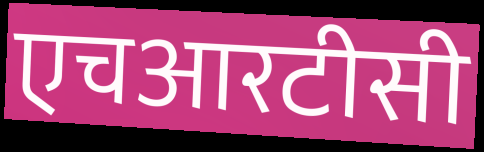
एचआरटीसी